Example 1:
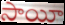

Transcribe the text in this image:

సాయీ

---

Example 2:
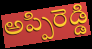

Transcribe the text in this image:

అప్పిరెడ్డి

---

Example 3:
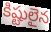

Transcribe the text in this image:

కిష్టులైన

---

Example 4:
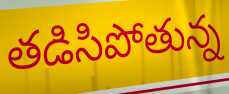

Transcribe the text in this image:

తడిసిపోతున్న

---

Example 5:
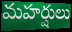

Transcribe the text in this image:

మహర్షులు